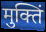
मुक्तिं